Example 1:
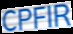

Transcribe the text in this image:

CPFIR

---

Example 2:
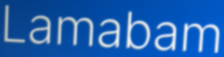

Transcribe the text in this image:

Lamabam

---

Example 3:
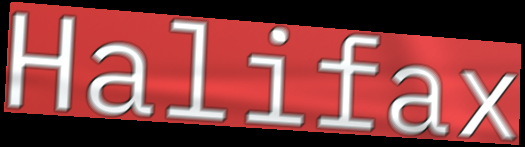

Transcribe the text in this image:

Halifax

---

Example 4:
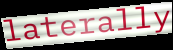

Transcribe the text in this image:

laterally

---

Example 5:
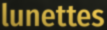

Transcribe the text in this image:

lunettes